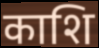
काशि